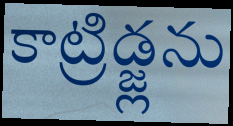
కాట్రిడ్జ్లను